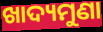
ଖାଦ୍ୟମୁଣା